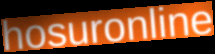
hosuronline